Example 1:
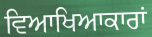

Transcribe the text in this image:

ਵਿਆਖਿਆਕਾਰਾਂ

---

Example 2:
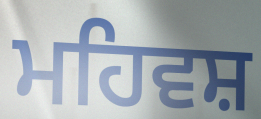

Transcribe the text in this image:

ਮਹਿਵਸ਼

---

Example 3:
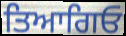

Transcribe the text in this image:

ਤਿਆਗਿਓ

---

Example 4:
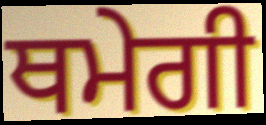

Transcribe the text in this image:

ਥਮੇਗੀ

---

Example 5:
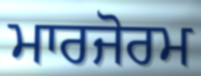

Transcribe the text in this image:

ਮਾਰਜੋਰਮ